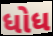
ધોધ